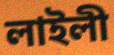
লাইলী